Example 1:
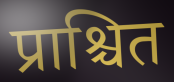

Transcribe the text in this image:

प्राश्चित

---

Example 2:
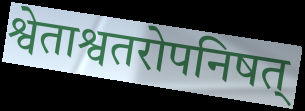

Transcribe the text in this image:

श्वेताश्वतरोपनिषत्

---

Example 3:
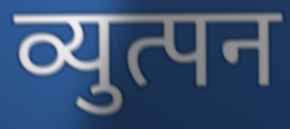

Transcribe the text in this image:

व्युत्पन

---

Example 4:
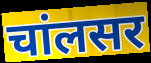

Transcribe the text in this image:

चांलसर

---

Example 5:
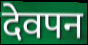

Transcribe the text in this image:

देवपन